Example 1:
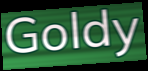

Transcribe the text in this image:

Goldy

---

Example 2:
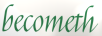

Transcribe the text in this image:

becometh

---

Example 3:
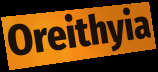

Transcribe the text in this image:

Oreithyia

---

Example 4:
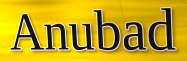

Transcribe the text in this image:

Anubad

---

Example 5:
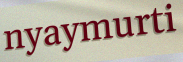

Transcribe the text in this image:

nyaymurti